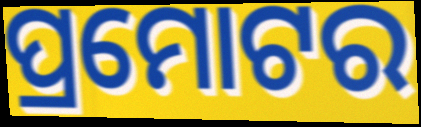
ପ୍ରମୋଟର